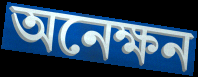
অনেক্ষন